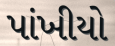
પાંખીયો